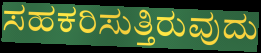
ಸಹಕರಿಸುತ್ತಿರುವುದು